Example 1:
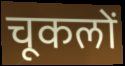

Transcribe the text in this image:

चूकलों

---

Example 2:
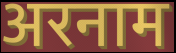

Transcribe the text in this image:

अरनाम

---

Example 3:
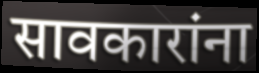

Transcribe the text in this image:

सावकारांना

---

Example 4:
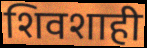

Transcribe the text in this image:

शिवशाही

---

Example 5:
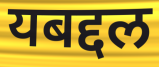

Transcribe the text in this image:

यबद्दल